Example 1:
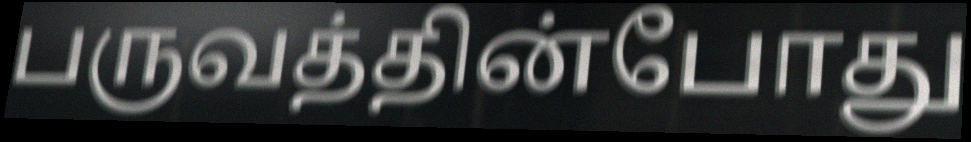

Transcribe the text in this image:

பருவத்தின்போது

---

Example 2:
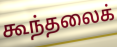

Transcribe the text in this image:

கூந்தலைக்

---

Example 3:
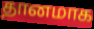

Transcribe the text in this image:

தானமாக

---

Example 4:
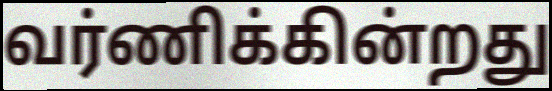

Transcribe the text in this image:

வர்ணிக்கின்றது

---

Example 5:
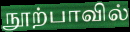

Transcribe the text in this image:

நூற்பாவில்